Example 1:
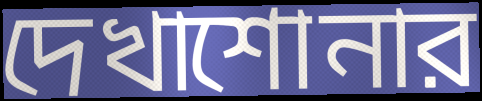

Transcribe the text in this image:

দেখাশোনার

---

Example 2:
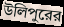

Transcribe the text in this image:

উলিপুরের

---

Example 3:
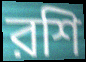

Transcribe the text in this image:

রশি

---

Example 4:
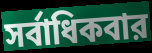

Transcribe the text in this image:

সর্বাধিকবার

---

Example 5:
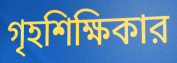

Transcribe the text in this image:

গৃহশিক্ষিকার